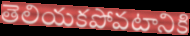
తెలియకపోవటానికి